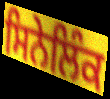
ਸਿਨੇਲਿੰਕ